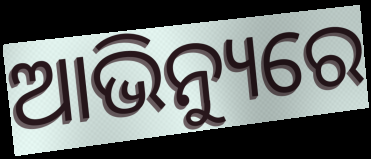
ଆଭିନ୍ୟୁରେ